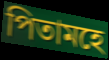
পিতামহে